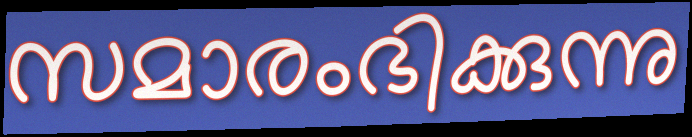
സമാരംഭിക്കുന്നു